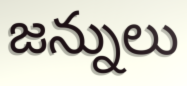
జన్నులు